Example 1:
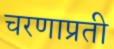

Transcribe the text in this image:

चरणाप्रती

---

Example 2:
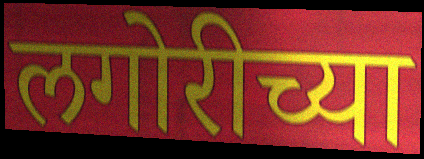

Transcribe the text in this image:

लगोरीच्या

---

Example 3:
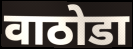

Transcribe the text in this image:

वाठोडा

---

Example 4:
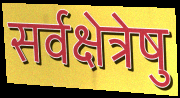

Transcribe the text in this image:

सर्वक्षेत्रेषु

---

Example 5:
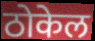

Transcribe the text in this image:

ठोकेल